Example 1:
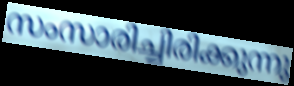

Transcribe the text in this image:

സംസാരിച്ചിരിക്കുന്നു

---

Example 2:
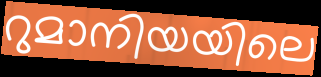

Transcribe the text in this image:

റുമാനിയയിലെ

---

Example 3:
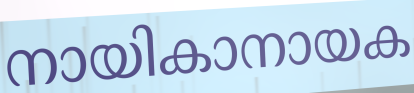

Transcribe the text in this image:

നായികാനായക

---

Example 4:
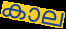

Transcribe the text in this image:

കാല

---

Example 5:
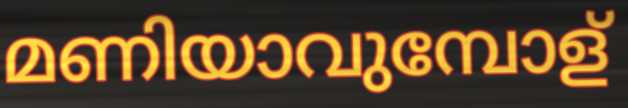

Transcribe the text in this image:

മണിയാവുമ്പോള്